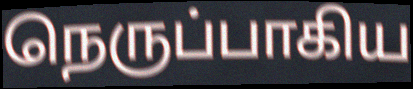
நெருப்பாகிய